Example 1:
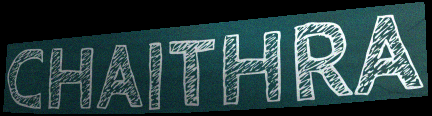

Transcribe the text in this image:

CHAITHRA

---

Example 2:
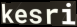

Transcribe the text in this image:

kesri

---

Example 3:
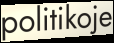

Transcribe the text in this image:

politikoje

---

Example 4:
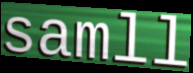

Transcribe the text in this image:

samll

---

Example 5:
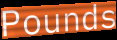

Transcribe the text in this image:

Pounds